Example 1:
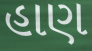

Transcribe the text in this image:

હાણ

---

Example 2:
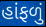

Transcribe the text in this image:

હાંફળું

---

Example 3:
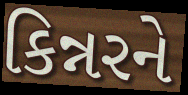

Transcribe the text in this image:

કિન્નરને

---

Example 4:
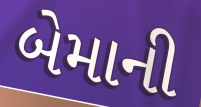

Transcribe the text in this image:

બેમાની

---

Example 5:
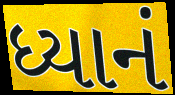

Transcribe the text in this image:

ધ્યાનં